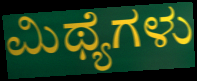
ಮಿಥ್ಯೆಗಳು